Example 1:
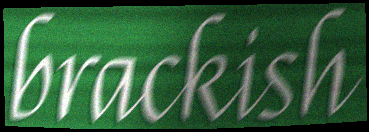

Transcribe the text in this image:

brackish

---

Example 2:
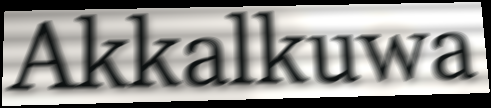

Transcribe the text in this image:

Akkalkuwa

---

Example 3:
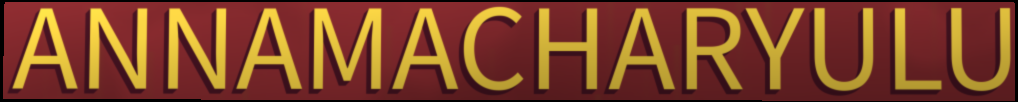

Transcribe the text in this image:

ANNAMACHARYULU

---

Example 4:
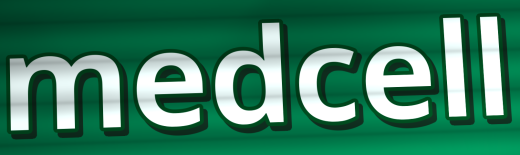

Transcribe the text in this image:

medcell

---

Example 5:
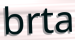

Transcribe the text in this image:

brta